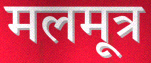
मलमूत्र